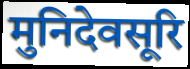
मुनिदेवसूरि